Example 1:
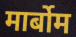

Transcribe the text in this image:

मार्बोम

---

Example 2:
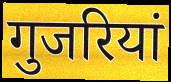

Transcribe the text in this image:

गुजरियां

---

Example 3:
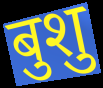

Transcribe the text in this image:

बुशु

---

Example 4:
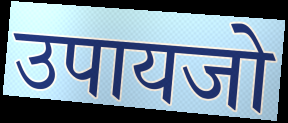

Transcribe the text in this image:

उपायजो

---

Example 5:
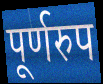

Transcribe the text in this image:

पूर्णरुप